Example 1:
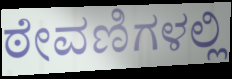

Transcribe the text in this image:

ಠೇವಣಿಗಳಲ್ಲಿ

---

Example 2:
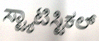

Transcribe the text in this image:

ಸ್ಟ್ಯಾಟಿಸ್ಟಿಕಲ್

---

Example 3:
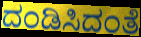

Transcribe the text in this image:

ದಂಡಿಸಿದಂತೆ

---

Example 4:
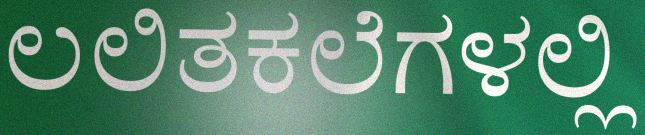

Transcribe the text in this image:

ಲಲಿತಕಲೆಗಳಲ್ಲಿ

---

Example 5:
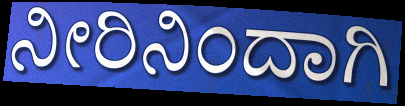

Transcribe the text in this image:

ನೀರಿನಿಂದಾಗಿ